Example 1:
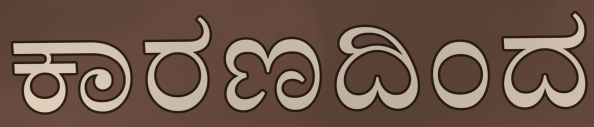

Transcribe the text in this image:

ಕಾರಣದಿಂದ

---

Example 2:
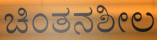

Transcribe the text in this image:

ಚಿಂತನಶೀಲ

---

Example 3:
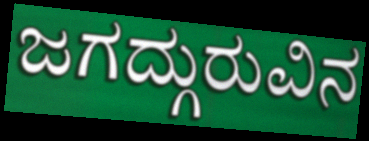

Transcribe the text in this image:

ಜಗದ್ಗುರುವಿನ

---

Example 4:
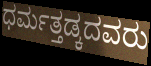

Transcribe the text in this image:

ಧರ್ಮತ್ತಡ್ಕದವರು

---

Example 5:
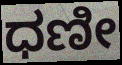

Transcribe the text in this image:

ಧಣೀ